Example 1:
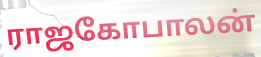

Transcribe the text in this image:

ராஜகோபாலன்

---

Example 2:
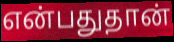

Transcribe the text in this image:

என்பதுதான்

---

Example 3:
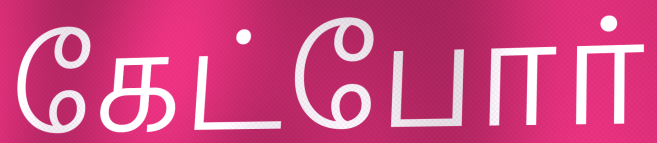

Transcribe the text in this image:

கேட்போர்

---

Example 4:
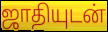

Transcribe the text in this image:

ஜாதியுடன்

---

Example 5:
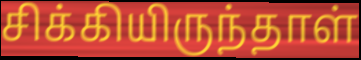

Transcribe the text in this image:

சிக்கியிருந்தாள்